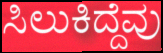
ಸಿಲುಕಿದ್ದೆವು